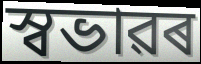
স্বভাৱৰ